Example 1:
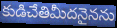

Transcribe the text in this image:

కుడిచేతిమీదనైనను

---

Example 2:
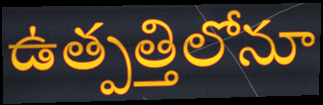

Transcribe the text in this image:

ఉత్పత్తిలోనూ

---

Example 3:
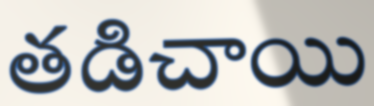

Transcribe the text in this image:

తడిచాయి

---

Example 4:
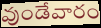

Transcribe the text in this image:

వుండేవారం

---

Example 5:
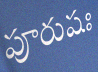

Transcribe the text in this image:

పూరుషః